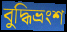
বুদ্ধিভ্রংশ